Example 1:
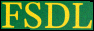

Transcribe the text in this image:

FSDL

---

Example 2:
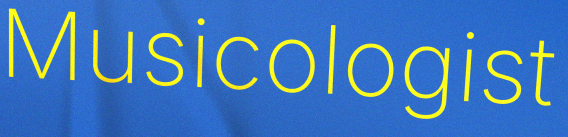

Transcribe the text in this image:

Musicologist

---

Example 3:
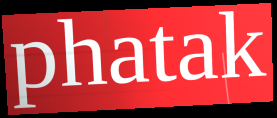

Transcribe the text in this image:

phatak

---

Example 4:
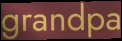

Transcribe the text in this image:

grandpa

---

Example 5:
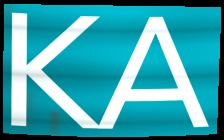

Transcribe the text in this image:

KA